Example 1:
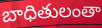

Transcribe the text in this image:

బాధితులంతా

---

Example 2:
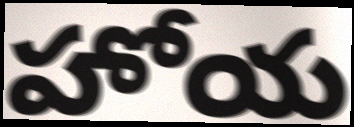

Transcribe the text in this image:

హోయ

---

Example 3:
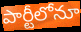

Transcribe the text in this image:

పార్టీలోనూ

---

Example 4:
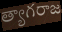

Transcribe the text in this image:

త్యాగరాజ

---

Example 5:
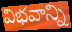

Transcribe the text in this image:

విభవాన్ని